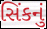
સિંકનું